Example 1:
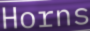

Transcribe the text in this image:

Horns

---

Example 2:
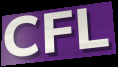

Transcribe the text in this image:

CFL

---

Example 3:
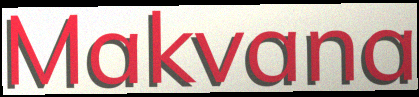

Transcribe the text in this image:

Makvana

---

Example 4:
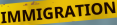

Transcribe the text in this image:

IMMIGRATION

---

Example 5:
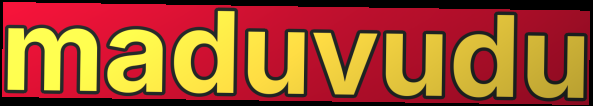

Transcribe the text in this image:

maduvudu